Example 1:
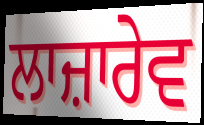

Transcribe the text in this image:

ਲਾਜ਼ਾਰੇਵ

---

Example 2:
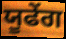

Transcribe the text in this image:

ਯੂਫੇਂਗ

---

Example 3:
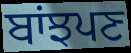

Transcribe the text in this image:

ਬਾਂਝਪਣ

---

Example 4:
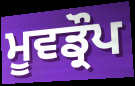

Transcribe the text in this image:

ਮੂਵਡ੍ਰੌਪ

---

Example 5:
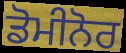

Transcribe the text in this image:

ਡੋਮੀਨੋਰ